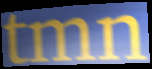
tmn